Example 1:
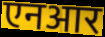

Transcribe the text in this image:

एनआर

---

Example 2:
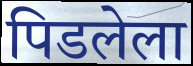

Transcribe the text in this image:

पिडलेला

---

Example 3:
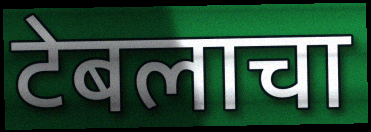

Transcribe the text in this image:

टेबलाचा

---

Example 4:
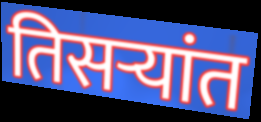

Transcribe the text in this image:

तिसर्‍यांत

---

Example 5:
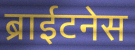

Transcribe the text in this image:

ब्राईटनेस